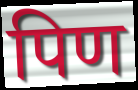
पिण